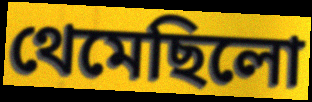
থেমেছিলো